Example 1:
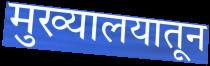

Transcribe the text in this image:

मुख्यालयातून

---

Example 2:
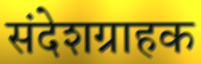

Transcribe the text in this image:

संदेशग्राहक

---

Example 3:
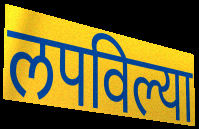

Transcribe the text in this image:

लपविल्या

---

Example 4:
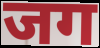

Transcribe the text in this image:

जग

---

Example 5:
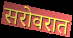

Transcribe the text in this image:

सरोवरात